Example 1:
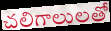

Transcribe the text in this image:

చలిగాలులతో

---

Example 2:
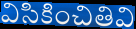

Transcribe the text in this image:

విసికించితివి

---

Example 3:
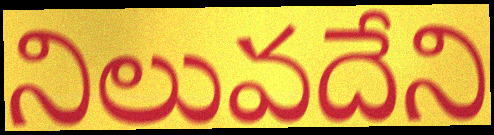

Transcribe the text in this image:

నిలువదేని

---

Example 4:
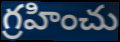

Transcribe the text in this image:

గ్రహించు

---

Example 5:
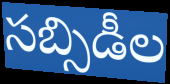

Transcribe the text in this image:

సబ్సిడీల